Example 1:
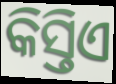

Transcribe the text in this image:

କିସ୍ତିଏ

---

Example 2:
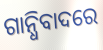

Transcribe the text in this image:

ଗାନ୍ଧିବାଦରେ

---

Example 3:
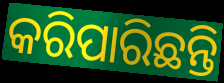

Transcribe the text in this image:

କରିପାରିଛନ୍ତି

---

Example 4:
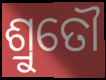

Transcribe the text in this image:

ଶ୍ରୁତୌ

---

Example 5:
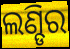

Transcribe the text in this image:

ଲଣ୍ଡିର